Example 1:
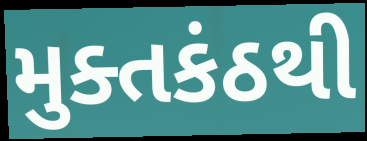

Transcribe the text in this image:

મુક્તકંઠથી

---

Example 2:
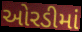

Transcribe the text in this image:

ઓરડીમાં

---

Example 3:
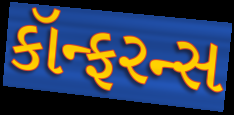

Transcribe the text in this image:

કૉન્ફરન્સ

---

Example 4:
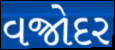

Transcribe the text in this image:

વજ્રોદર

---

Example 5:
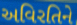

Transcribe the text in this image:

અવિરતિને